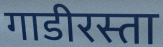
गाडीरस्ता